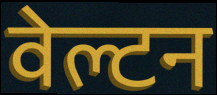
वेल्टन